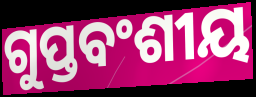
ଗୁପ୍ତବଂଶୀୟ